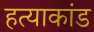
हत्याकांड